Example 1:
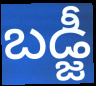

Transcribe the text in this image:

బడ్జీ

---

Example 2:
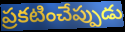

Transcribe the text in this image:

ప్రకటించేప్పుడు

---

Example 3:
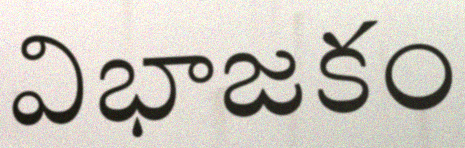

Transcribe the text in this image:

విభాజకం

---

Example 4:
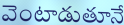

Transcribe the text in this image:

వెంటాడుతూనే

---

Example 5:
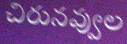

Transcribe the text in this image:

చిరునవ్వుల